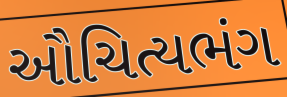
ઔચિત્યભંગ